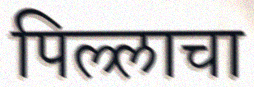
पिल्लाचा